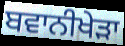
ਬਵਾਨੀਖੇੜਾ